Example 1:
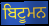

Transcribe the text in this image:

ਬਿਟੂਮਨ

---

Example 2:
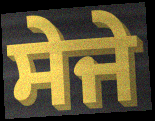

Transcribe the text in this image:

ਸੇਜੇ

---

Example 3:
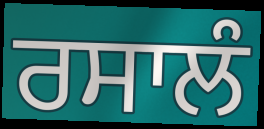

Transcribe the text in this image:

ਰਸਾਲੰ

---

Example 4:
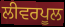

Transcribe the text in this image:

ਲੀਵਰਪੂਲ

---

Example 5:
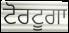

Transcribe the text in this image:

ਟੋਰਟੂਗਾ